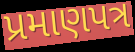
પ્રમાણપત્ર